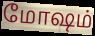
மோஷம்